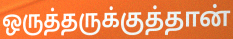
ஒருத்தருக்குத்தான்